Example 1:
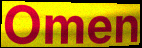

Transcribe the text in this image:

Omen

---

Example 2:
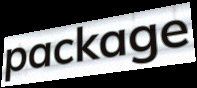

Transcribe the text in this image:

package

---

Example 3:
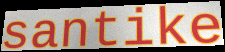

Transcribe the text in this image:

santike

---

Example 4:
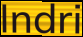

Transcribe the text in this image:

Indri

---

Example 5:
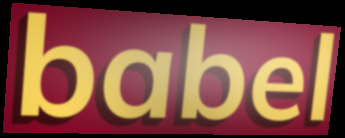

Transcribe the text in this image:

babel